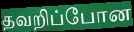
தவறிப்போன